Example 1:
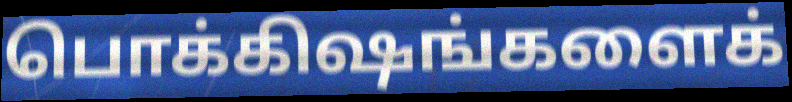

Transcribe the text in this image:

பொக்கிஷங்களைக்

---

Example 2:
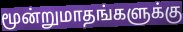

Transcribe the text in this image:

மூன்றுமாதங்களுக்கு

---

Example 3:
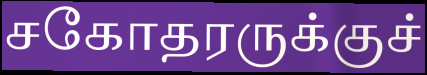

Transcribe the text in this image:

சகோதரருக்குச்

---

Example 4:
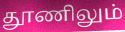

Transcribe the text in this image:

தூணிலும்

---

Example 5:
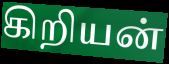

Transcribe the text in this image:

கிறியன்